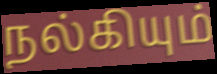
நல்கியும்